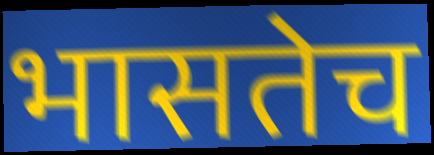
भासतेच